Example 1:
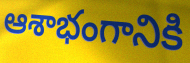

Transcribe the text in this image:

ఆశాభంగానికి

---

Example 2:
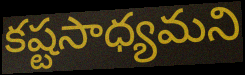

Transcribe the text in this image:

కష్టసాధ్యమని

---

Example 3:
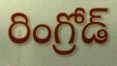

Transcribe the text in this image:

రింగ్రోడ్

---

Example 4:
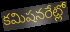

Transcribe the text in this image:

కమిషనరేట్లో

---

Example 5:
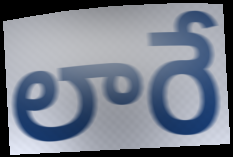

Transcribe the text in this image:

లారే